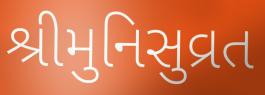
શ્રીમુનિસુવ્રત